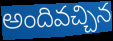
అందివచ్చిన